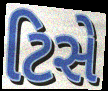
ટિસે